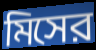
মিসের